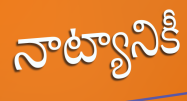
నాట్యానికీ